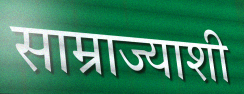
साम्राज्याशी